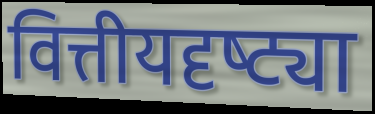
वित्तीयदृष्ट्या